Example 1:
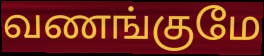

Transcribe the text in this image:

வணங்குமே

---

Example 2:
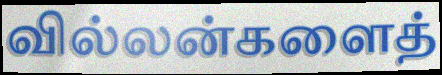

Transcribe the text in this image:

வில்லன்களைத்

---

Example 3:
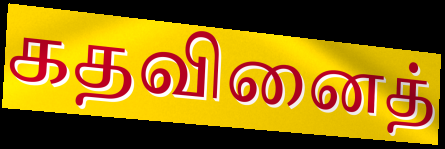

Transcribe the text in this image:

கதவினைத்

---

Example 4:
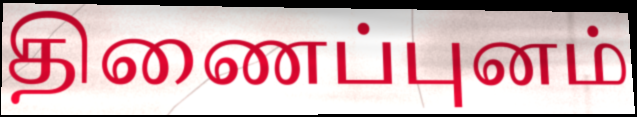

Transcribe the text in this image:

திணைப்புனம்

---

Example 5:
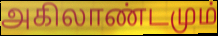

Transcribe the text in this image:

அகிலாண்டமும்